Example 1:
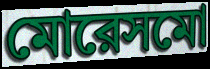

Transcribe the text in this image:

মোরেসমো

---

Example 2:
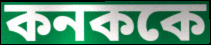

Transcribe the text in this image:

কনককে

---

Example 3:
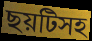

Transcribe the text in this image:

ছয়টিসহ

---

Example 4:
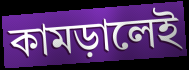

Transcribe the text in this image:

কামড়ালেই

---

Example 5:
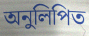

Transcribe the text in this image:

অনুলিপিত